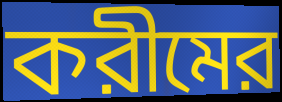
করীমের